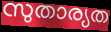
സുതാര്യത